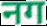
नग